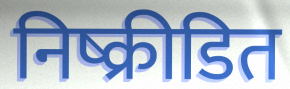
निष्क्रीडित